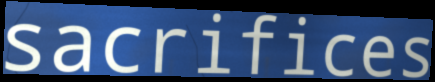
sacrifices